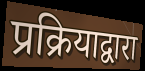
प्रक्रियाद्वारा